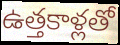
ఉత్తకాళ్లతో